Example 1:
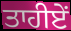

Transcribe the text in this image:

ਤਾਹੀਏਂ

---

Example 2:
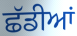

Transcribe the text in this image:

ਛੱਡੀਆਂ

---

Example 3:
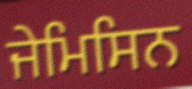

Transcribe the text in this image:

ਜੇਮਿਸਿਨ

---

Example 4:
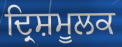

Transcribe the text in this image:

ਦ੍ਰਿਸ਼ਮੂਲਕ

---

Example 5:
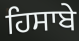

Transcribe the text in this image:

ਹਿਸਾਬੇ